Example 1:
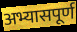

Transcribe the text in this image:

अभ्यासपूर्ण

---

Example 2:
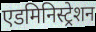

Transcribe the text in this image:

एडमिनिस्ट्रेशन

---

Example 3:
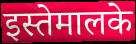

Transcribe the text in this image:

इस्तेमालके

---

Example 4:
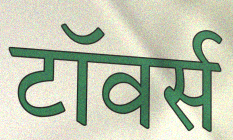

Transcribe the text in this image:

टॉवर्स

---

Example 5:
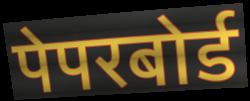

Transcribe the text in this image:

पेपरबोर्ड